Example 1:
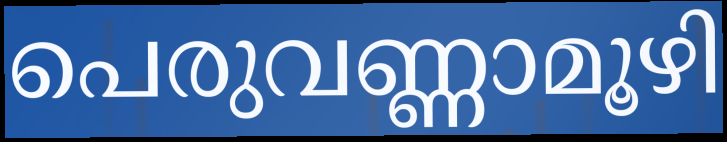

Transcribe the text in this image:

പെരുവണ്ണാമൂഴി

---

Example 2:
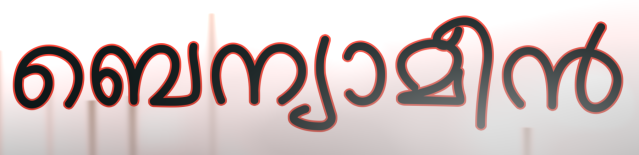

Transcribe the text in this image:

ബെന്യാമീൻ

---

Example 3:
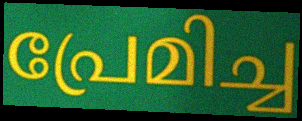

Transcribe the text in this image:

പ്രേമിച്ച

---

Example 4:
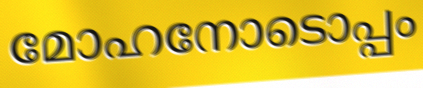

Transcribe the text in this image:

മോഹനോടൊപ്പം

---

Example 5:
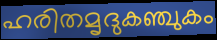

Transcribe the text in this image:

ഹരിതമൃദുകഞ്ചുകം